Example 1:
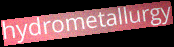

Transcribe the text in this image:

hydrometallurgy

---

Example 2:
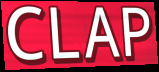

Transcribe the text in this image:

CLAP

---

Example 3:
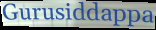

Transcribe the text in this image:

Gurusiddappa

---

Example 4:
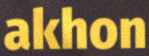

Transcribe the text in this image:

akhon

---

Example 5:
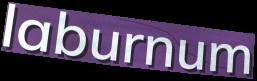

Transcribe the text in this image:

laburnum